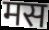
मस